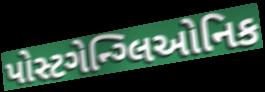
પોસ્ટગેન્ગ્લિઓનિક